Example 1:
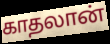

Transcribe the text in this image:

காதலான்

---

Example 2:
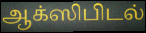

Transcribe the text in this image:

ஆக்ஸிபிடல்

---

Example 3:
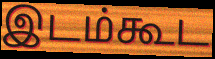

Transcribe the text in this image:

இடம்கூட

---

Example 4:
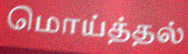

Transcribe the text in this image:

மொய்த்தல்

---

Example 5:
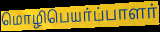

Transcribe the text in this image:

மொழிபெயர்ப்பாளர்